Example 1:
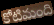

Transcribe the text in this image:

కోటిమంది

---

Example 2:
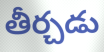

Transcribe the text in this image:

తీర్చడు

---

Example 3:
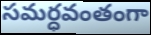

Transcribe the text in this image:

సమర్ధవంతంగా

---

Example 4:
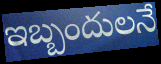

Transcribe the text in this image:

ఇబ్బందులనే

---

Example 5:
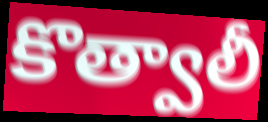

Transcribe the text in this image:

కొత్వాలీ